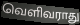
வெளிவராது